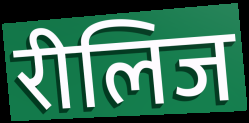
रीलिज